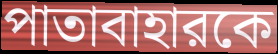
পাতাবাহারকে